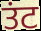
उंट